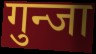
गुन्जा